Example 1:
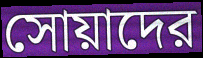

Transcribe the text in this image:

সোয়াদের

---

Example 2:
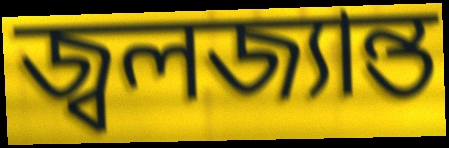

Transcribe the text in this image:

জ্বলজ্যান্ত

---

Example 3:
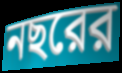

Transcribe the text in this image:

নছরের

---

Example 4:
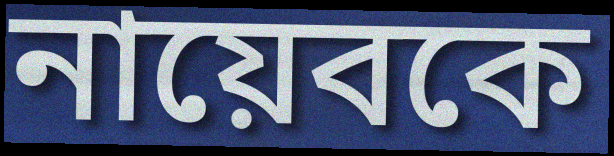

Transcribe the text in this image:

নায়েবকে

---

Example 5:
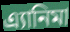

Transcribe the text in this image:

এ্যানিমা